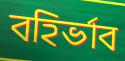
বহির্ভাব